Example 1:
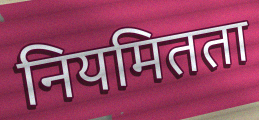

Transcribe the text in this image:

नियमितता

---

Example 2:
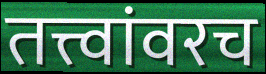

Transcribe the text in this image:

तत्त्वांवरच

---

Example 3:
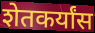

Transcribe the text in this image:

शेतकर्यांस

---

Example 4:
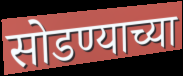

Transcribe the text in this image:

सोडण्याच्या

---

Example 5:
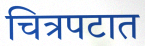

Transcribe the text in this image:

चित्रपटात